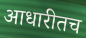
आधारीतच